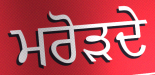
ਮਰੋੜਦੇ